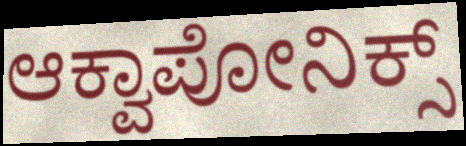
ಆಕ್ವಾಪೋನಿಕ್ಸ್